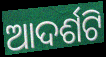
ଆଦର୍ଶଟି